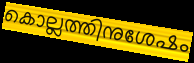
കൊല്ലത്തിനുശേഷം